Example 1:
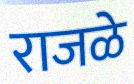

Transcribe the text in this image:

राजळे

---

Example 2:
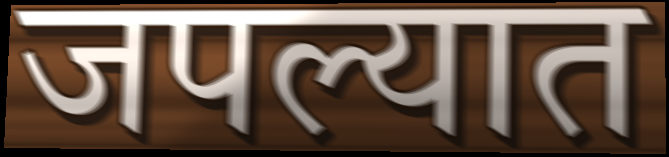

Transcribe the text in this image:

जपल्यात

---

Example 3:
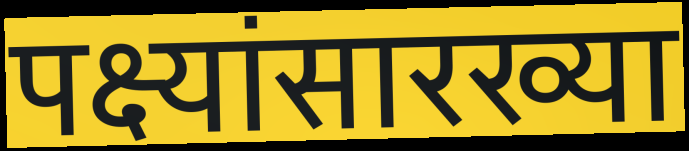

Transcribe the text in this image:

पक्ष्यांसारख्या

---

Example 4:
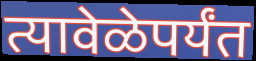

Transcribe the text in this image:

त्यावेळेपर्यंत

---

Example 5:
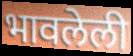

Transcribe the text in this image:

भावलेली